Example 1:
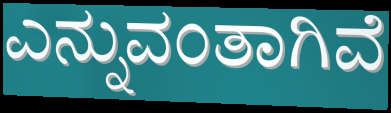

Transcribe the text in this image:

ಎನ್ನುವಂತಾಗಿವೆ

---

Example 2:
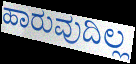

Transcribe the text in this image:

ಹಾರುವುದಿಲ್ಲ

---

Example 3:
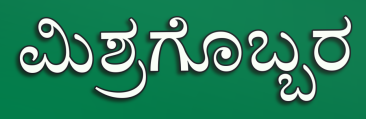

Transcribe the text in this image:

ಮಿಶ್ರಗೊಬ್ಬರ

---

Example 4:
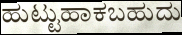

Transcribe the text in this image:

ಹುಟ್ಟುಹಾಕಬಹುದು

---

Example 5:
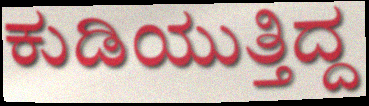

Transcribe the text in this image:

ಕುಡಿಯುತ್ತಿದ್ದ